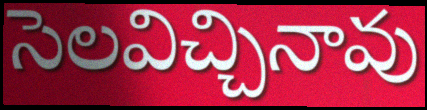
సెలవిచ్చినావు